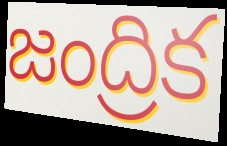
జంద్రిక